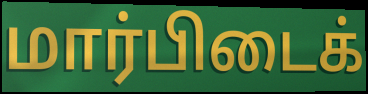
மார்பிடைக்